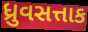
ધ્રુવસત્તાક